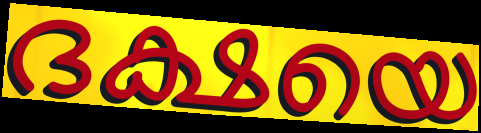
ദക്ഷയെ